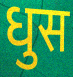
धुस